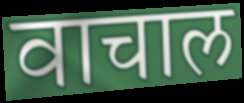
वाचाल